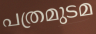
പത്രമുടമ